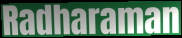
Radharaman